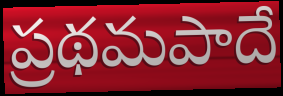
ప్రథమపాదే